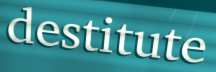
destitute